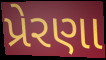
પ્રેરણા